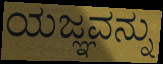
ಯಜ್ಞವನ್ನು